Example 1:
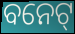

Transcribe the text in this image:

ବନେଟ୍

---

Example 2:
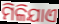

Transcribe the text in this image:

ମିଳିଯାଏ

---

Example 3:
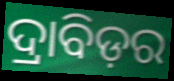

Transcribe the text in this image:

ଦ୍ରାବିଡ଼ର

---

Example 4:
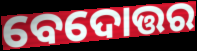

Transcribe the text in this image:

ବେଦୋତ୍ତର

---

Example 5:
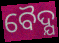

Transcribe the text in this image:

ବୈଦ୍ଯ